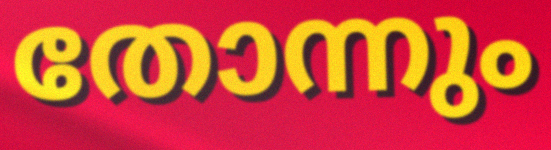
തോന്നും